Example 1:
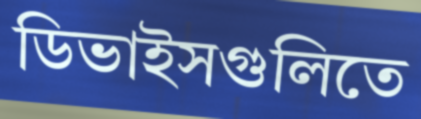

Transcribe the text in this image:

ডিভাইসগুলিতে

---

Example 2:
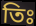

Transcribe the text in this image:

তিঃ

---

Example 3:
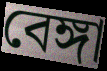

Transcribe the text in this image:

বেঙ্গা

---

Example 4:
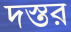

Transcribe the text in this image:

দস্তর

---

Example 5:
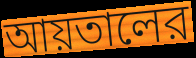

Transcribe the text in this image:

আয়তালের